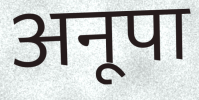
अनूपा